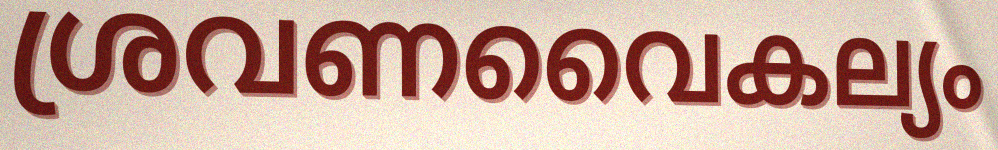
ശ്രവണവൈകല്യം